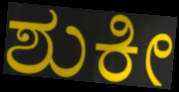
ಶುಕೀ